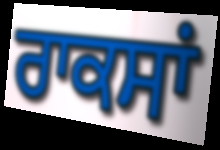
ਰਾਕਸਾਂ